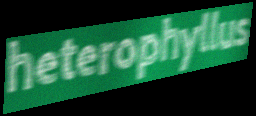
heterophyllus